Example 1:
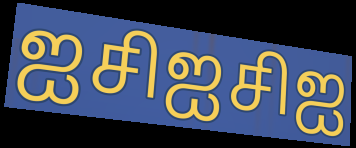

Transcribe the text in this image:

ஐசிஐசிஐ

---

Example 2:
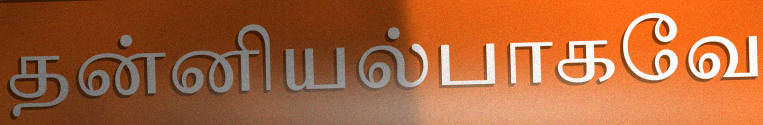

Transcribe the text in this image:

தன்னியல்பாகவே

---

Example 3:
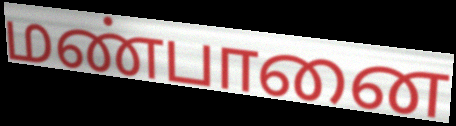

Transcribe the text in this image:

மண்பானை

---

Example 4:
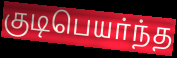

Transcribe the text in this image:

குடிபெயர்ந்த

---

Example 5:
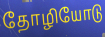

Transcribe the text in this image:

தோழியோடு